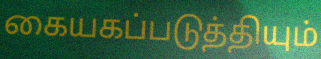
கையகப்படுத்தியும்